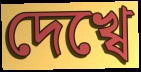
দেখ্বে